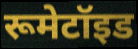
रूमेटॉइड